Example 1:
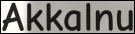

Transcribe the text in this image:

Akkalnu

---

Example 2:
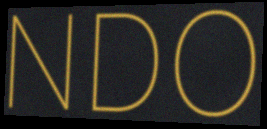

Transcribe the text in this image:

NDO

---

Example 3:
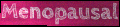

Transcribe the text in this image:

Menopausal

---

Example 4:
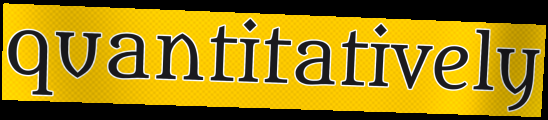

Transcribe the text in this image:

quantitatively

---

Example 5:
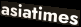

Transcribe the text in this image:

asiatimes